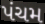
પંચમ